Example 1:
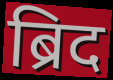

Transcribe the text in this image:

ब्रिद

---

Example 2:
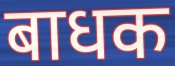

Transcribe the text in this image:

बाधक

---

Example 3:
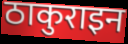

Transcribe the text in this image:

ठाकुराइन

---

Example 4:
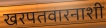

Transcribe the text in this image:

खरपतवारनाशी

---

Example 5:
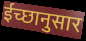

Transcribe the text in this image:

ईच्छानुसार